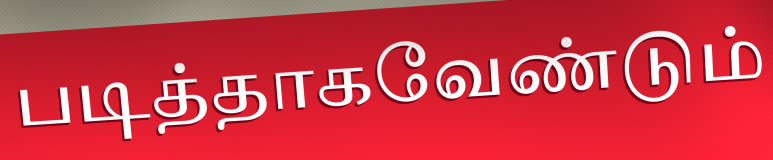
படித்தாகவேண்டும்